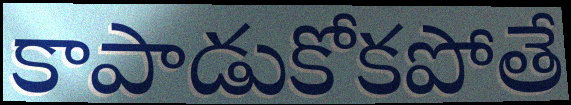
కాపాడుకోకపోతే